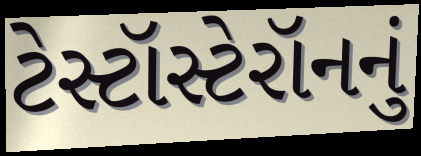
ટેસ્ટૉસ્ટેરૉનનું